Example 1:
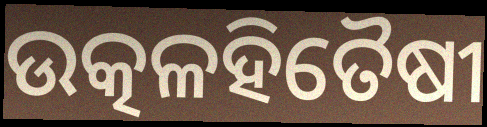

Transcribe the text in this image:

ଉତ୍କଳହିତୈଷୀ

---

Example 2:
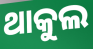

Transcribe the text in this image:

ଥାକୁଲ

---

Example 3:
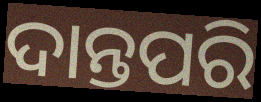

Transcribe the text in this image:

ଦାନ୍ତପରି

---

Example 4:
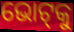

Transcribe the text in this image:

ଭୋଟ୍‍କୁ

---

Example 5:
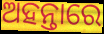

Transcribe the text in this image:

ଅହନ୍ତାରେ